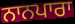
ਨਾਨਪਾਰਾ